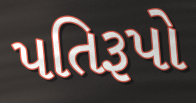
પતિરૂપો